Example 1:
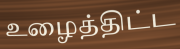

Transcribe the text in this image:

உழைத்திட்ட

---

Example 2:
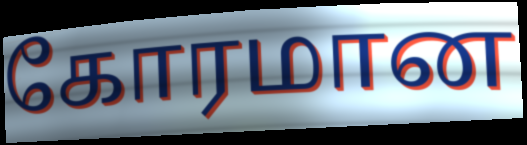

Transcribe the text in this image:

கோரமான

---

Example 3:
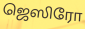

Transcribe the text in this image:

ஜெஸிரோ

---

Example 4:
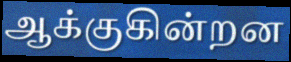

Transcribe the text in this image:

ஆக்குகின்றன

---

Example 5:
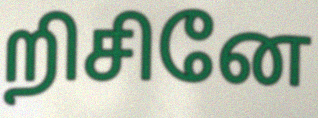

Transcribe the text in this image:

றிசினே